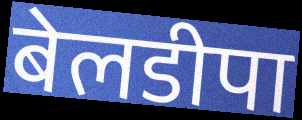
बेलडीपा